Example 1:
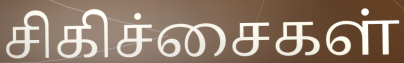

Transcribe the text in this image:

சிகிச்சைகள்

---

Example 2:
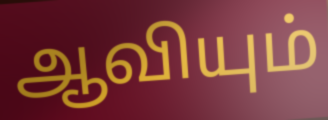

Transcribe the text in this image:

ஆவியும்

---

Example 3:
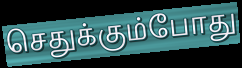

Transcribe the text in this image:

செதுக்கும்போது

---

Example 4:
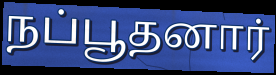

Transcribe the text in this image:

நப்பூதனார்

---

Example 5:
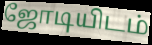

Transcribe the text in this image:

ஜோடியிடம்